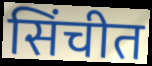
सिंचीत